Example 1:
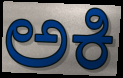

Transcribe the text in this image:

ಅಕಿ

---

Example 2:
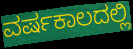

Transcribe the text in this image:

ವರ್ಷಕಾಲದಲ್ಲಿ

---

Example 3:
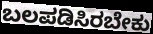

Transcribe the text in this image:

ಬಲಪಡಿಸಿರಬೇಕು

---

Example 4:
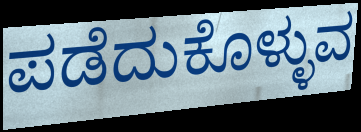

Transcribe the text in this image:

ಪಡೆದುಕೊಳ್ಳುವ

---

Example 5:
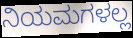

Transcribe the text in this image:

ನಿಯಮಗಳಲ್ಲ